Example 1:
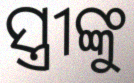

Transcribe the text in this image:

ସ୍ତ୍ରୀଙ୍କୁ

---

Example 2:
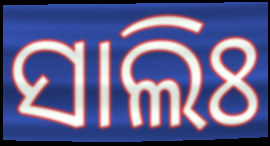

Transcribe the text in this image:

ସାଲିଃ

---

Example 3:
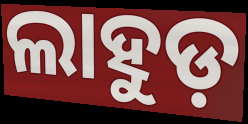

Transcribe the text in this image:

ଲାହୁଡ଼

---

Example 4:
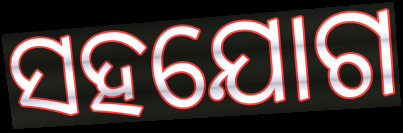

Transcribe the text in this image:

ସହଯୋଗ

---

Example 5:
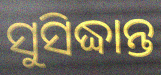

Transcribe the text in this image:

ସୁସିଦ୍ଧାନ୍ତ